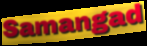
Samangad